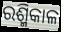
ରଶ୍ମିକାଳ